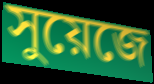
সুয়েজে